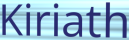
Kiriath